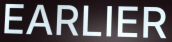
EARLIER